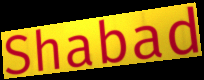
Shabad